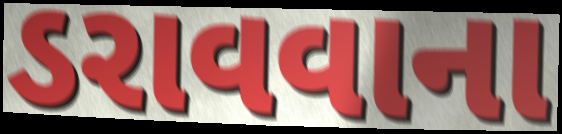
ડરાવવાના